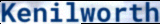
Kenilworth